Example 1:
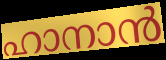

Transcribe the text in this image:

ഹാനാൻ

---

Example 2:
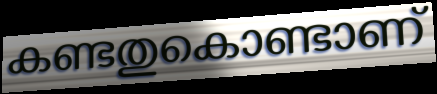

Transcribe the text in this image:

കണ്ടതുകൊണ്ടാണ്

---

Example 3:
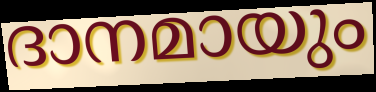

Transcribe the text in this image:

ദാനമായും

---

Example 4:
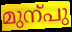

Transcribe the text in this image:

മുന്പു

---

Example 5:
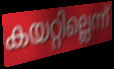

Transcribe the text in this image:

കയറ്റില്ലെന്ന്